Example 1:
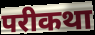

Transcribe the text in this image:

परीकथा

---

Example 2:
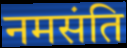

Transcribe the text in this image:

नमसंति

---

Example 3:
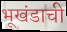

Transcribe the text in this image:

भूखंडाची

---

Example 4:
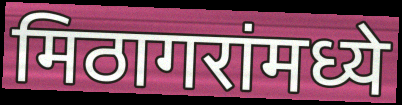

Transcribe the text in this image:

मिठागरांमध्ये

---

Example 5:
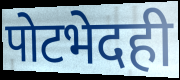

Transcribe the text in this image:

पोटभेदही